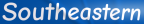
Southeastern